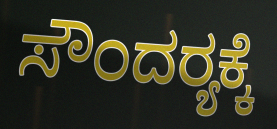
ಸೌಂದರ‍್ಯಕ್ಕೆ